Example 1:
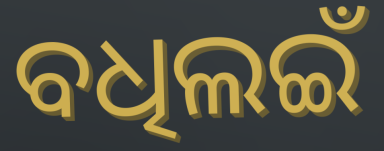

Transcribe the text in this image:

ବଧିଲଇଁ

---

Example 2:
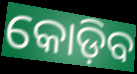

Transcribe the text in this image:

କୋଡ଼ିବ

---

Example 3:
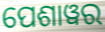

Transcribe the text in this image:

ପେଶାୱର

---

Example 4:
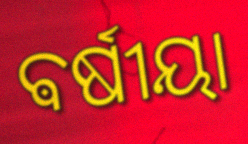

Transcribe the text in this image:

ଵର୍ଷୀୟା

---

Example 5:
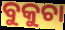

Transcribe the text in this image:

ବୁକୁଚା